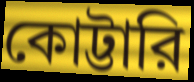
কোট্টারি